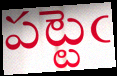
పట్టెఁ